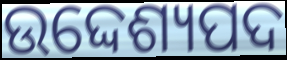
ଉଦ୍ଦେଶ୍ୟପଦ